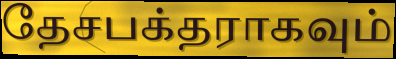
தேசபக்தராகவும்